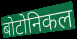
बोटोनिकल